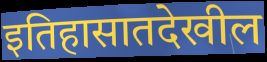
इतिहासातदेखील